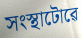
সংস্থাটোৱে